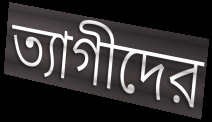
ত্যাগীদের